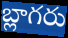
బ్లాగరు